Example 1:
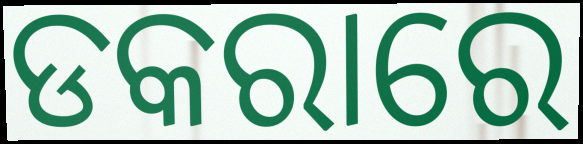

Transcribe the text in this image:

ଡକରାରେ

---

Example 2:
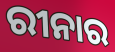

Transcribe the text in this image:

ରୀନାର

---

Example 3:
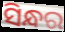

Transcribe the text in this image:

ସିନ୍ଧର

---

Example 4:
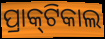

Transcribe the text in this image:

ପ୍ରାକ୍‌ଟିକାଲ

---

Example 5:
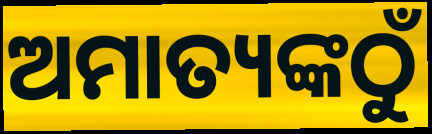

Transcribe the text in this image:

ଅମାତ୍ୟଙ୍କଠୁଁ